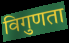
विगुणता